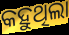
କହୁଥିଲା